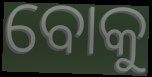
ବୋକୁ